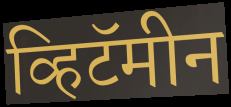
व्हिटॅमीन